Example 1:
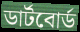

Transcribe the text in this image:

ডার্টবোর্ড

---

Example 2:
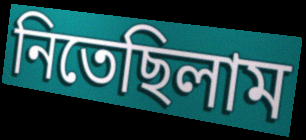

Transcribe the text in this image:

নিতেছিলাম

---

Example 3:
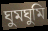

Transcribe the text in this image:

ঘুমঘুমি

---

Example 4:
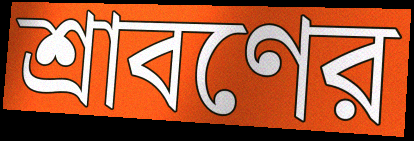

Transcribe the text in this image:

শ্রাবণের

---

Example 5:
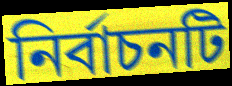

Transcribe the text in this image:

নির্বাচনটি